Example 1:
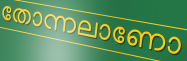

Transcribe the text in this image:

തോന്നലാണോ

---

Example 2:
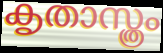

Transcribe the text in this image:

കൃതാസ്ത്രം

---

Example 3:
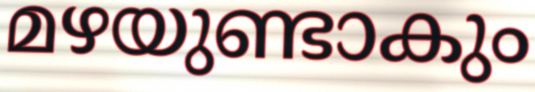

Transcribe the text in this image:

മഴയുണ്ടാകും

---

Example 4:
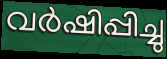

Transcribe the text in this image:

വർഷിപ്പിച്ചു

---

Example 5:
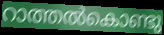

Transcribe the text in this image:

റാത്തൽകൊണ്ടു